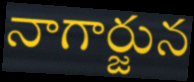
నాగార్జున